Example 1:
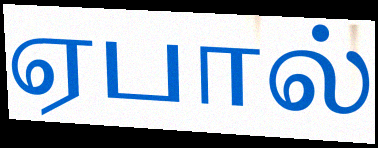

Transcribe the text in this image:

ஏபால்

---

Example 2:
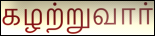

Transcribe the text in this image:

கழற்றுவார்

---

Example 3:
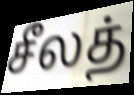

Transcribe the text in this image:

சீலத்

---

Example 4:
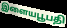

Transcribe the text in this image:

இளையபூபதி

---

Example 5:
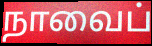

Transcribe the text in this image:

நாவைப்